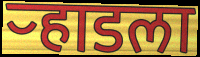
ऱ्हाडला